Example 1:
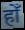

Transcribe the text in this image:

होँ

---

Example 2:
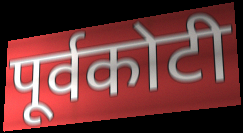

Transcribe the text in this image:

पूर्वकोटी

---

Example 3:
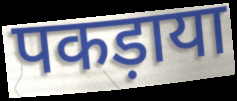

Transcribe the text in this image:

पकड़ाया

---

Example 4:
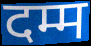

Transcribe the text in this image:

दम्म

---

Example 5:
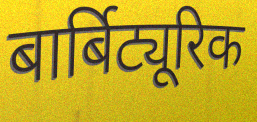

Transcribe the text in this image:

बार्बिट्यूरिक